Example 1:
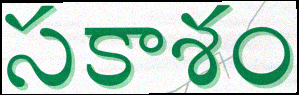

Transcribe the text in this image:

సకాశం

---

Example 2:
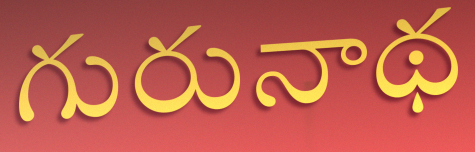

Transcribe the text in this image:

గురునాథ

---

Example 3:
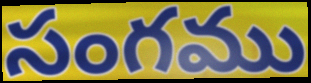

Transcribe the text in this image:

సంగము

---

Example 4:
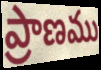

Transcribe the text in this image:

ప్రాణము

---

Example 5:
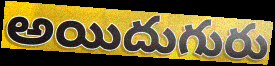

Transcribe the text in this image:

అయిదుగురు